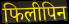
फिलीपिन